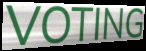
VOTING